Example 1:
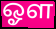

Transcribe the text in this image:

ஓள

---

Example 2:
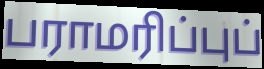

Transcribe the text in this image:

பராமரிப்புப்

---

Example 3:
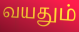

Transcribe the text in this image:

வயதும்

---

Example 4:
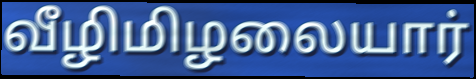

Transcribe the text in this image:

வீழிமிழலையார்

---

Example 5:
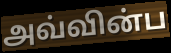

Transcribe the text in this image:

அவ்வின்ப